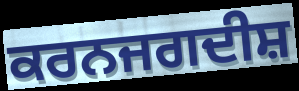
ਕਰਨਜਗਦੀਸ਼